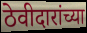
ठेवीदारांच्या